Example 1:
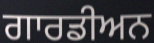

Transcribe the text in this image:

ਗਾਰਡੀਅਨ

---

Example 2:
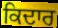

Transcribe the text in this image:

ਕਿਦਾਰ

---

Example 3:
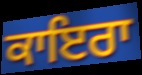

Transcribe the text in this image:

ਕਾਇਰਾ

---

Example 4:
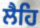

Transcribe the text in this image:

ਲੈਹਿ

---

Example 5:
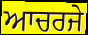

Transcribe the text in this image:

ਆਚਰਜੇ